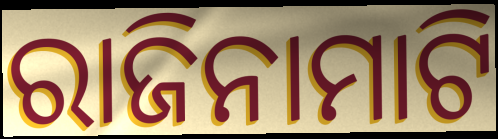
ରାଜିନାମାଟି